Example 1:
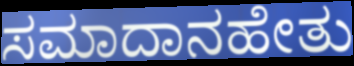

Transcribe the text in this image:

ಸಮಾದಾನಹೇತು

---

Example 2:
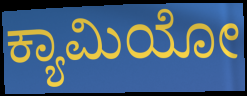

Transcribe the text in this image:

ಕ್ಯಾಮಿಯೋ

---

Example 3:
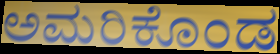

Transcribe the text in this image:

ಅಮರಿಕೊಂಡ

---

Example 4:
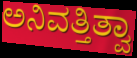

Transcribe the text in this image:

ಅನಿವತ್ತಿತ್ವಾ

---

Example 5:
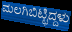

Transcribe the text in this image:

ಮಲಗಿಬಿಟ್ಟಿದ್ದಳು